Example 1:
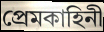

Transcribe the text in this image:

প্রেমকাহিনী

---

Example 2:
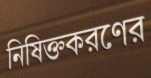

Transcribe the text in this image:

নিষিক্তকরণের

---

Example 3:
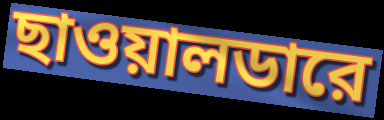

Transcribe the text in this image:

ছাওয়ালডারে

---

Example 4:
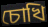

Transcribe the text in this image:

চোখি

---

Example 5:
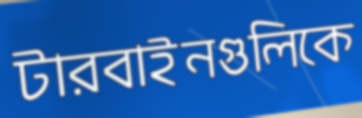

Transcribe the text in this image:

টারবাইনগুলিকে